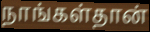
நாங்கள்தான்